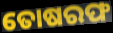
ତୋଷରଫ